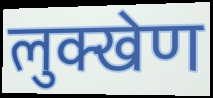
लुक्खेण